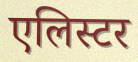
एलिस्टर